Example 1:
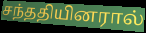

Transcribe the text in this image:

சந்ததியினரால்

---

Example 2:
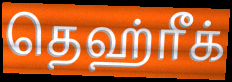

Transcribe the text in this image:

தெஹ்ரீக்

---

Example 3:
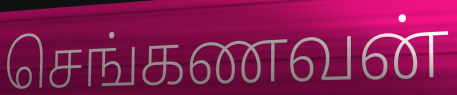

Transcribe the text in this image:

செங்கணவன்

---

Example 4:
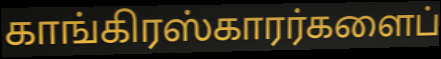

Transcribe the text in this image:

காங்கிரஸ்காரர்களைப்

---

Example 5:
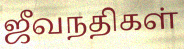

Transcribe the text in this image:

ஜீவநதிகள்